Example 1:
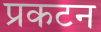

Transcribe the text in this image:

प्रकटन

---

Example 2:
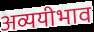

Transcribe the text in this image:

अव्ययीभाव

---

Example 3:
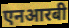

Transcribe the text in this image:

एनआरबी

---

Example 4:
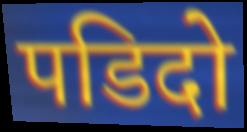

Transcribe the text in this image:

पडिदो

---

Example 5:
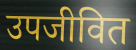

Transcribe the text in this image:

उपजीवित